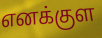
எனக்குள